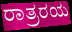
ರಾತ್ರರಯ